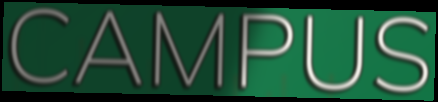
CAMPUS